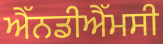
ਐੱਨਡੀਐੱਮਸੀ